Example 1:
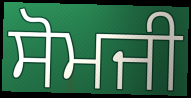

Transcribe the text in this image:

ਸੋਮਜੀ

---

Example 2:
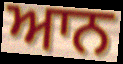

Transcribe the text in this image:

ਆਨ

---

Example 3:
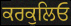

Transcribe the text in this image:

ਕਰਕੁਲਿਓ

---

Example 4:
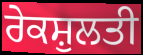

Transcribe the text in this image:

ਰੇਕਸ਼ੁਲਤੀ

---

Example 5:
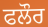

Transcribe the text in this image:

ਫਲੌਰ